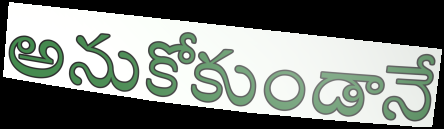
అనుకోకుండానే